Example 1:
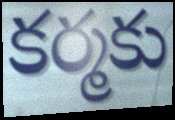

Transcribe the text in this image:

కర్మకు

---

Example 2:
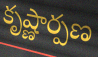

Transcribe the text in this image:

కృష్ణార్పణ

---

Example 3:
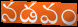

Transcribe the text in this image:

నడవం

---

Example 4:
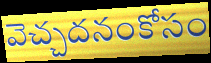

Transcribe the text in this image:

వెచ్చదనంకోసం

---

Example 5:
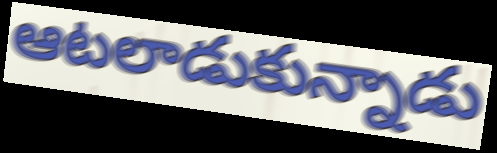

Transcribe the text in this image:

ఆటలాడుకున్నాడు